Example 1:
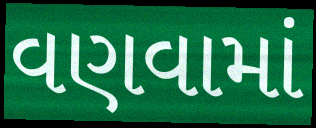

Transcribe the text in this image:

વણવામાં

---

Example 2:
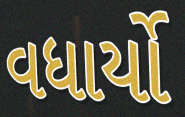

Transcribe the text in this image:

વધાર્યો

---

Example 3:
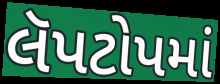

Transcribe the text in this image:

લૅપટોપમાં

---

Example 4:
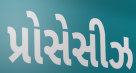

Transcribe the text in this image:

પ્રોસેસીઝ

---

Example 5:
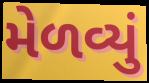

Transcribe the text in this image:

મેળવ્યું